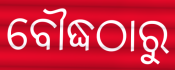
ବୌଦ୍ଧଠାରୁ